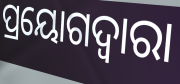
ପ୍ରୟୋଗଦ୍ଵାରା